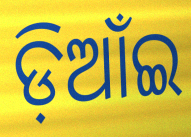
ଡ଼ିଆଁଇ